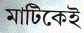
মাটিকেই